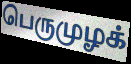
பெருமுழக்